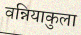
वन्नियाकुला